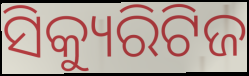
ସିକ୍ୟୁରିଟିଜ